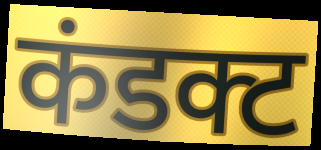
कंडक्‍ट